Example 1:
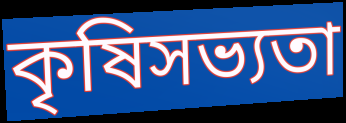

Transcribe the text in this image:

কৃষিসভ্যতা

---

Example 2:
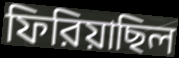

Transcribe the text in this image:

ফিরিয়াছিল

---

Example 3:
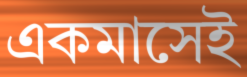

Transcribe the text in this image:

একমাসেই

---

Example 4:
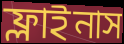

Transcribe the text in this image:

ফ্লাইনাস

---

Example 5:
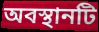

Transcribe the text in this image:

অবস্থানটি